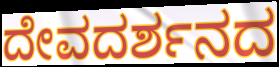
ದೇವದರ್ಶನದ